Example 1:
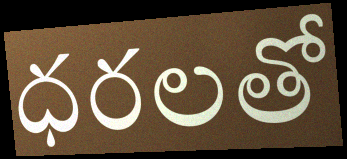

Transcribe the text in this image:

ధరలతో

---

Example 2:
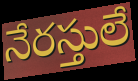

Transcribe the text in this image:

నేరస్తులే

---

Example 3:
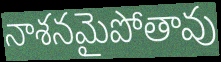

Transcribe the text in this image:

నాశనమైపోతావు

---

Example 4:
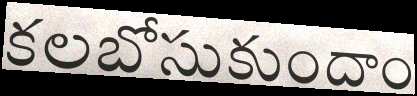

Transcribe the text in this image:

కలబోసుకుందాం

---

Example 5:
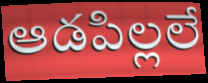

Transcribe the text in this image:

ఆడపిల్లలే